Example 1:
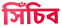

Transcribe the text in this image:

সিঁচিব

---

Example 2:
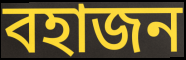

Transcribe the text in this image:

বহাজন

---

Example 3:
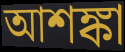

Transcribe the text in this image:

আশঙ্কা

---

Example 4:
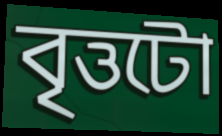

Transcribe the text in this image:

বৃত্তটো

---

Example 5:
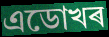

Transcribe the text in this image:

এডোখৰ